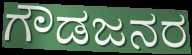
ಗೌಡಜನರ